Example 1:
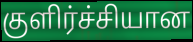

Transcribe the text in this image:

குளிர்ச்சியான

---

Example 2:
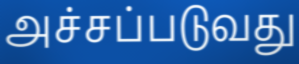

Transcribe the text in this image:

அச்சப்படுவது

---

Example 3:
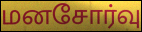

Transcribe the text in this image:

மனசோர்வு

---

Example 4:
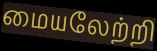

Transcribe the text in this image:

மையலேற்றி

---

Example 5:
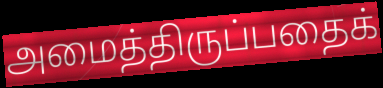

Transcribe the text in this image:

அமைத்திருப்பதைக்